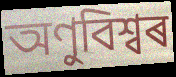
অণুবিশ্বৰ